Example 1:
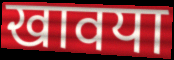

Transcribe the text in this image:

खावया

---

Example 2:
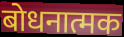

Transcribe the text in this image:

बोधनात्मक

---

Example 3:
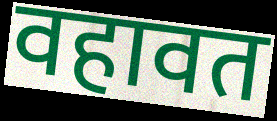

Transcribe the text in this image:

वहावत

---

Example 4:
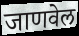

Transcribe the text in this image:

जाणवेल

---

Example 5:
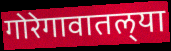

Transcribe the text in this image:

गोरेगावातल्या